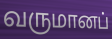
வருமானப்